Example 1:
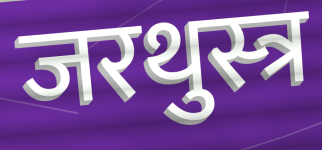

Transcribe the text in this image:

जरथुस्‍त्र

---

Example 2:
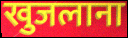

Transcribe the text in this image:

खुजलाना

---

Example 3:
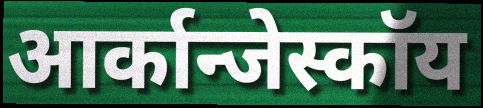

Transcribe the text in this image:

आर्कान्जेस्कॉय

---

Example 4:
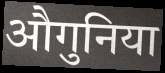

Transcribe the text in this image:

औगुनिया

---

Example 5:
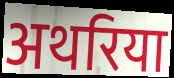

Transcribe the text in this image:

अथरिया